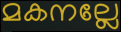
മകനല്ലേ